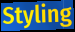
Styling